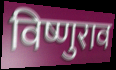
विष्णुराव